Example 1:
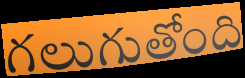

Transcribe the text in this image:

గలుగుతోంది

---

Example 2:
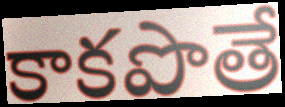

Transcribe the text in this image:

కాకపొతే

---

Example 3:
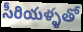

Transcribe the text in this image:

సీరియళ్ళతో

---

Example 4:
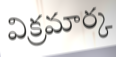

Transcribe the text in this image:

విక్రమార్క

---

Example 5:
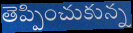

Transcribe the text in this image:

తెప్పించుకున్న